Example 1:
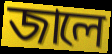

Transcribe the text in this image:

জালে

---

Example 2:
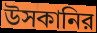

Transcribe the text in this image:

উসকানির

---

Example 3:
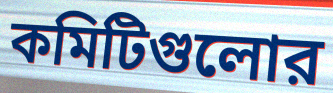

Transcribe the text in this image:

কমিটিগুলোর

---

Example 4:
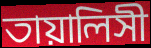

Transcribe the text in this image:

তায়ালিসী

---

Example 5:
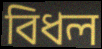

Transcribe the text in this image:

বিধল